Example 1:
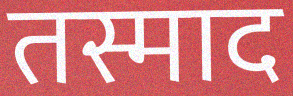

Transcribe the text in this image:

तस्माद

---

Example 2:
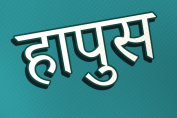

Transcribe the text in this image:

हापुस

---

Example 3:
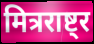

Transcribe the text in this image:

मित्रराष्ट्र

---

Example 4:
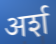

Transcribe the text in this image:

अर्श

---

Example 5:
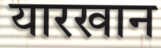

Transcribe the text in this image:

यारखान